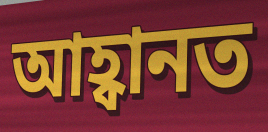
আহ্বানত